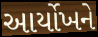
આર્યોખને